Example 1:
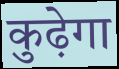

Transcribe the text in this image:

कुढ़ेगा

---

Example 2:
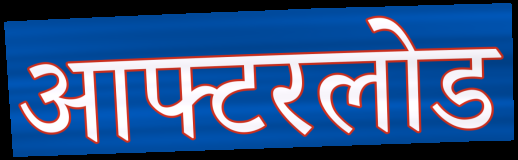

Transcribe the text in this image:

आफ्टरलोड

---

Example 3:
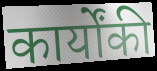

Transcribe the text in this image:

कार्योंकी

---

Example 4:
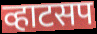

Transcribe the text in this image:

व्हाटसप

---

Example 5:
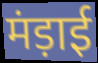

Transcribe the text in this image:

मंड़ाई